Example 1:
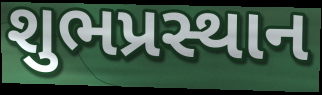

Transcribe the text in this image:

શુભપ્રસ્થાન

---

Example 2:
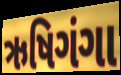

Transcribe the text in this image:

ઋષિગંગા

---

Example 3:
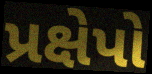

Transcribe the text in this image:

પ્રક્ષેપો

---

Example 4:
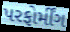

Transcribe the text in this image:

પરફોર્મીંગ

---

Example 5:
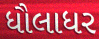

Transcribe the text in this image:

ધૌલાધર